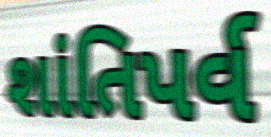
શાંતિપર્વ